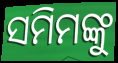
ସମିମଙ୍କୁ